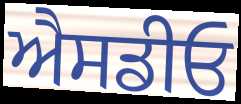
ਐਸਡੀਓ